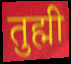
तुह्मी